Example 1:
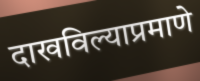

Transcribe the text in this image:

दाखविल्याप्रमाणे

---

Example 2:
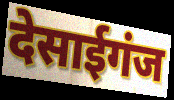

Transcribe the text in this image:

देसाईगंज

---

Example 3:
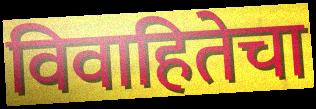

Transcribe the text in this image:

विवाहितेचा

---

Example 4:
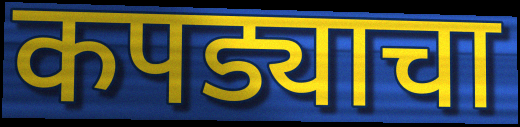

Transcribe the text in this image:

कपड्याचा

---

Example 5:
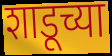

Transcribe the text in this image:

शाडूच्या